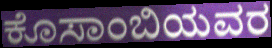
ಕೊಸಾಂಬಿಯವರ